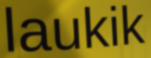
laukik